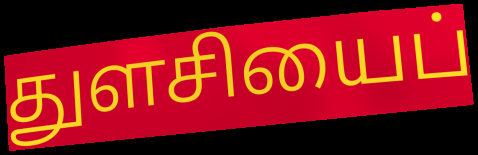
துளசியைப்